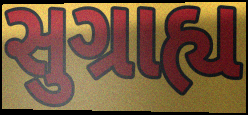
સુગ્રાહ્ય